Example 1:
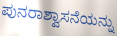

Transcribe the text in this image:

ಪುನರಾಶ್ವಾಸನೆಯನ್ನು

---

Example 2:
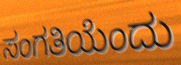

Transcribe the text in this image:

ಸಂಗತಿಯೆಂದು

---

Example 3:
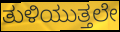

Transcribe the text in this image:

ತುಳಿಯುತ್ತಲೇ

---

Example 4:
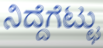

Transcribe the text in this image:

ನಿದ್ದೆಗೆಟ್ಟು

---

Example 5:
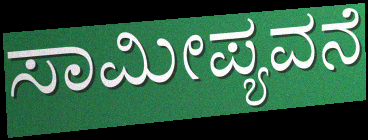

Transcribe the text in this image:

ಸಾಮೀಪ್ಯವನೆ